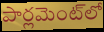
పార్లమెంట్‌లో